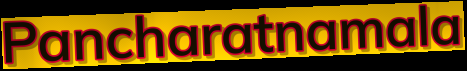
Pancharatnamala